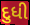
દુધી